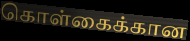
கொள்கைக்கான